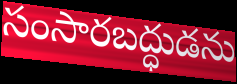
సంసారబద్ధుడను